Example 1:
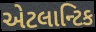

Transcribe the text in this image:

એટલાન્ટિક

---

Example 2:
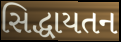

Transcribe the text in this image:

સિદ્ધાયતન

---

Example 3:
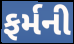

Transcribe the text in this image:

ફર્મની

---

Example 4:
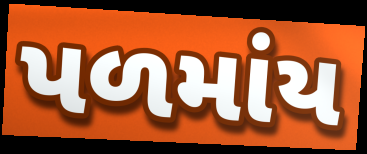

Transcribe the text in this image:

પળમાંય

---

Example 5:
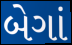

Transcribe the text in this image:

બેગાં